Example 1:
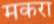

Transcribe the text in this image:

मकरा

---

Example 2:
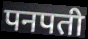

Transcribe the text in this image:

पनपती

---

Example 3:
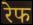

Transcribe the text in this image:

रेफ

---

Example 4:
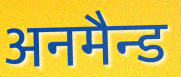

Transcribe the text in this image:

अनमैन्ड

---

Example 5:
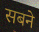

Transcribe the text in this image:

सबने